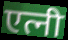
एत्नी